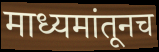
माध्यमांतूनच